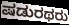
ಷಡುರಥರು